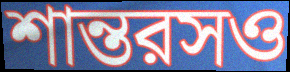
শান্তরসও